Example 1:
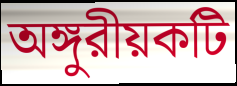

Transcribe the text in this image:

অঙ্গুরীয়কটি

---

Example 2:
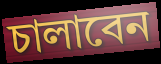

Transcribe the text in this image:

চালাবেন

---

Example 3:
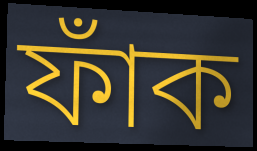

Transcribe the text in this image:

ফাঁক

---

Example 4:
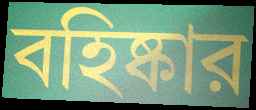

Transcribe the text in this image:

বহিষ্কার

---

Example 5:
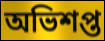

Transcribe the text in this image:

অভিশপ্ত